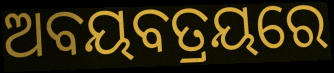
ଅବୟବତ୍ରୟରେ